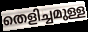
തെളിച്ചമുള്ള